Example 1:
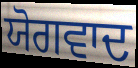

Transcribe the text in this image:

ਯੋਗਵਾਦ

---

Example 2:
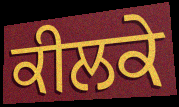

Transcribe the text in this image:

ਕੀਲਕੇ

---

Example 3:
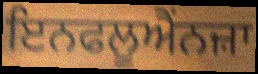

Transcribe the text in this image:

ਇਨਫਲੂਐਂਨਜ਼ਾ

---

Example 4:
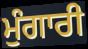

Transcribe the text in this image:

ਮੁੰਗਾਰੀ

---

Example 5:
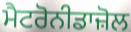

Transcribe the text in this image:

ਮੈਟਰੋਨੀਡਾਜ਼ੋਲ